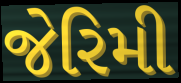
જેરિમી